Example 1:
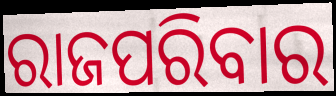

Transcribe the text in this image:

ରାଜପରିବାର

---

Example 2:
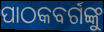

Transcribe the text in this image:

ପାଠକବର୍ଗଙ୍କୁ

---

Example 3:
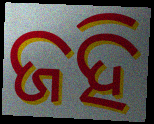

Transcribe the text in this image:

ଜହି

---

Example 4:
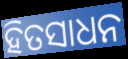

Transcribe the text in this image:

ହିତସାଧନ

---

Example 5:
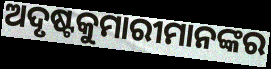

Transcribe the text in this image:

ଅଦୃଷ୍ଟକୁମାରୀମାନଙ୍କର